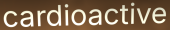
cardioactive